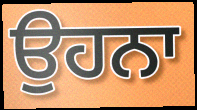
ਉਹਨਾ